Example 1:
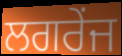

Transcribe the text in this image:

ਲਗਰੇਂਜ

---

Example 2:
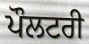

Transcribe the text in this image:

ਪੌਲਟਰੀ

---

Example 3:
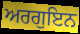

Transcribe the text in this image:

ਅਰਗੁਇਨ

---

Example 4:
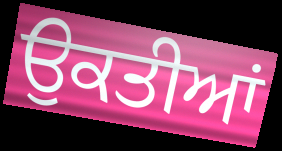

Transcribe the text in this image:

ਉਕਤੀਆਂ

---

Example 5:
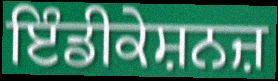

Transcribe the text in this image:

ਇੰਡੀਕੇਸ਼ਨਜ਼